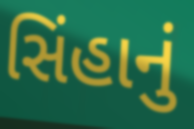
સિંહાનું